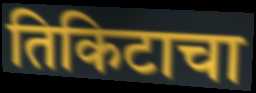
तिकिटाचा